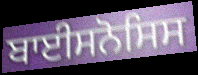
ਬਾਈਸਨੋਸਿਸ